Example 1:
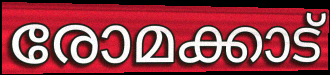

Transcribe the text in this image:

രോമക്കാട്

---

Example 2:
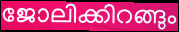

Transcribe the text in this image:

ജോലിക്കിറങ്ങും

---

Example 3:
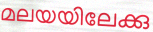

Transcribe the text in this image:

മലയയിലേക്കു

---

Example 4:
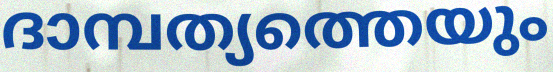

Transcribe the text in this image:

ദാമ്പത്യത്തെയും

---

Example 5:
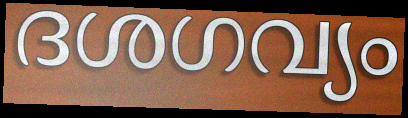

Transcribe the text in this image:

ദശഗവ്യം